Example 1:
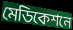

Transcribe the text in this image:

মেডিকেশনে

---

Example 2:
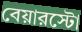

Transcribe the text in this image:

বেয়ারস্টো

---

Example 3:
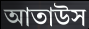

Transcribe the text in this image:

আতাউস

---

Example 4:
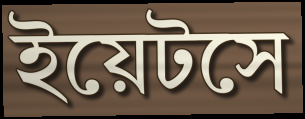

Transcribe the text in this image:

ইয়েটসে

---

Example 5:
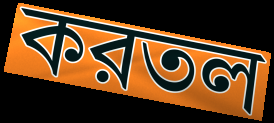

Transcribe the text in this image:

করতল